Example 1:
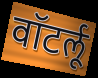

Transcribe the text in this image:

वॉटर्लू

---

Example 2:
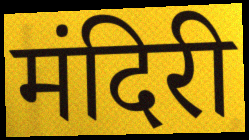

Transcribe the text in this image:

मंदिरी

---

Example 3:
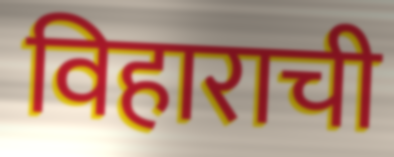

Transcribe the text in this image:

विहाराची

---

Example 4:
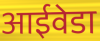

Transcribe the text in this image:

आईवेडा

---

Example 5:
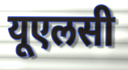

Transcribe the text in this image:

यूएलसी